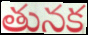
తునక